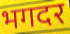
भगदर